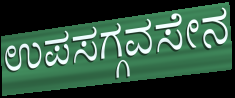
ಉಪಸಗ್ಗವಸೇನ